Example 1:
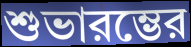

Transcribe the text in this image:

শুভারম্ভের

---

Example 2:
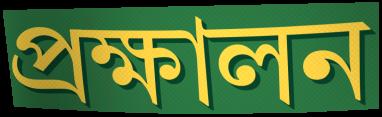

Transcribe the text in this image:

প্রক্ষালন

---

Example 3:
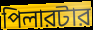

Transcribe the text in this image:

পিলারটার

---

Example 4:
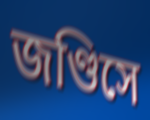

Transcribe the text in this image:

জণ্ডিসে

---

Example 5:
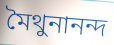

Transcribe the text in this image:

মৈথুনানন্দ